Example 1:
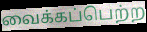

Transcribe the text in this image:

வைக்கப்பெற்ற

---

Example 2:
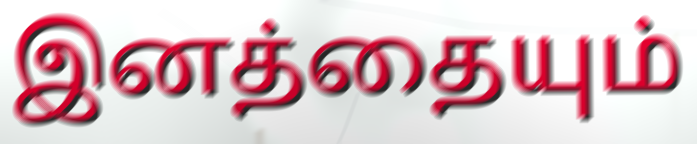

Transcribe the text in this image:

இனத்தையும்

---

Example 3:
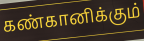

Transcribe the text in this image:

கண்கானிக்கும்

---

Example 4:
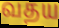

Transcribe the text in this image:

வதய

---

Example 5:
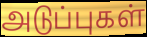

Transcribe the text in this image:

அடுப்புகள்